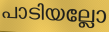
പാടിയല്ലോ